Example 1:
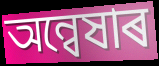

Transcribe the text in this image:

অন্বেষাৰ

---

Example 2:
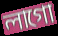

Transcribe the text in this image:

লাগো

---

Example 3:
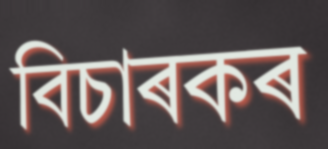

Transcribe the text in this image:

বিচাৰকৰ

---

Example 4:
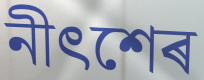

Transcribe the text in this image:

নীৎশেৰ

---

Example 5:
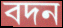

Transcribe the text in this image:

বদন